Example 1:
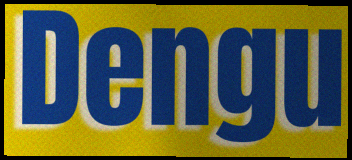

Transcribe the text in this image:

Dengu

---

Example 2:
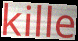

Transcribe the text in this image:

kille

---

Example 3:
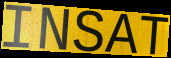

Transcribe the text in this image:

INSAT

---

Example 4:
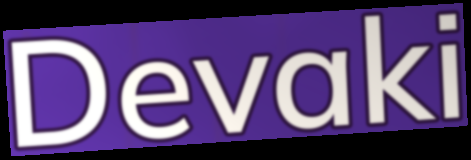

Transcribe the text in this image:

Devaki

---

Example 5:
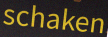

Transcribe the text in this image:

schaken